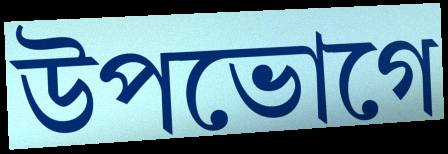
উপভোগে